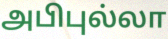
அபிபுல்லா